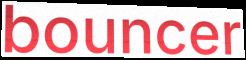
bouncer